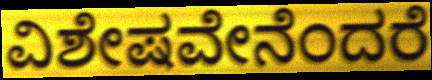
ವಿಶೇಷವೇನೆಂದರೆ